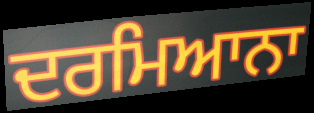
ਦਰਮਿਆਨਾ